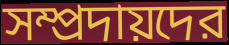
সম্প্রদায়দের